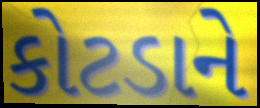
કોટડાને